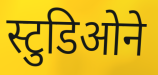
स्टुडिओने